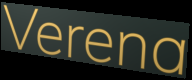
Verena